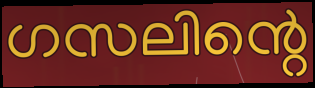
ഗസലിന്റെ